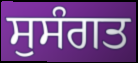
ਸੁਸੰਗਤ